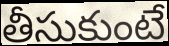
తీసుకుంటే